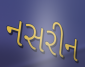
નસરીન